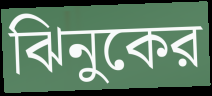
ঝিনুকের